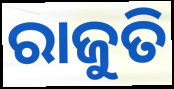
ରାଜୁତି